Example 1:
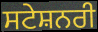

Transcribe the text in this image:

ਸਟੇਸ਼ਨਰੀ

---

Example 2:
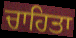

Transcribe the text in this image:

ਚਾਹਿਤਾ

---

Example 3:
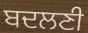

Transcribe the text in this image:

ਬਦਲਣੀ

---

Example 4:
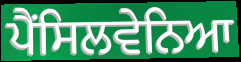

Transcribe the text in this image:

ਪੈਂਸਿਲਵੇਨਿਆ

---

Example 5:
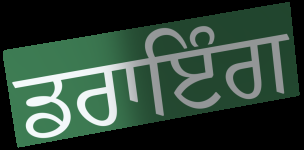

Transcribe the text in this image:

ਡਰਾਇੰਗ